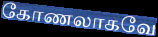
கோணலாகவே